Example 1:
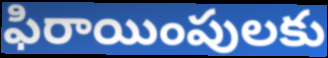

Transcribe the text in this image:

ఫిరాయింపులకు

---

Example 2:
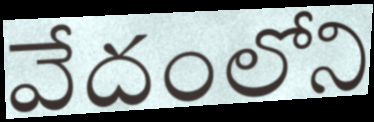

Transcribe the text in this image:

వేదంలోని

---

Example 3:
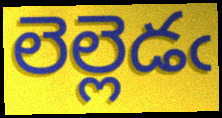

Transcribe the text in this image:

లెల్లెడఁ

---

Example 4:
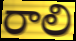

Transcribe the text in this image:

రాలి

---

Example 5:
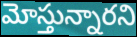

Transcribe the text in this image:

మోస్తున్నారని